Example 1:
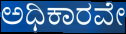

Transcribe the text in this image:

ಅಧಿಕಾರವೇ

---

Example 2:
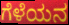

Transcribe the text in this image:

ಗೆಳೆಯನ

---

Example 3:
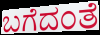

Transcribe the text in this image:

ಬಗೆದಂತೆ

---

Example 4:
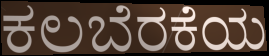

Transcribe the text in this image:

ಕಲಬೆರಕೆಯ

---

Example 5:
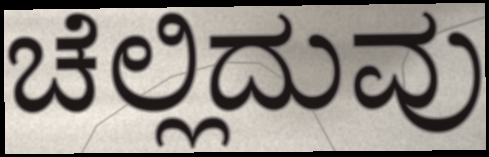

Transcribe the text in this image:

ಚೆಲ್ಲಿದುವು